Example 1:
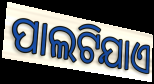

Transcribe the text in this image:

ପାଲଟିଯାଏ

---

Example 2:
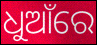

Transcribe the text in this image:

ଧୁଆଁରେ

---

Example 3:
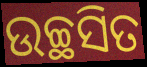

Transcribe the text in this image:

ଉଚ୍ଛସିତ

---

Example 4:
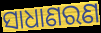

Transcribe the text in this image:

ସାଧାଣରଣ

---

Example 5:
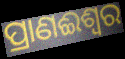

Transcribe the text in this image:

ପ୍ରାଣଈଶ୍ୱର